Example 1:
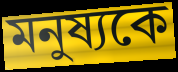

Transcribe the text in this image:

মনুষ্যকে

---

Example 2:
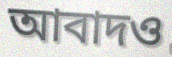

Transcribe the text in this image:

আবাদও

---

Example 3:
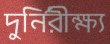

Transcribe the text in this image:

দুর্নিরীক্ষ্য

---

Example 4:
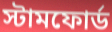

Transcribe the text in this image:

স্টামফোর্ড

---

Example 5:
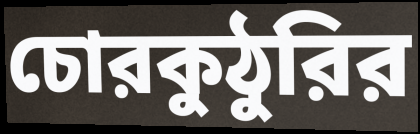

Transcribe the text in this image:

চোরকুঠুরির